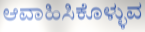
ಆವಾಹಿಸಿಕೊಳ್ಳುವ